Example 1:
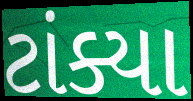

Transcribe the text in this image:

ટાંક્યા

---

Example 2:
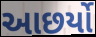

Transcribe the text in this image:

આછર્યો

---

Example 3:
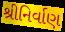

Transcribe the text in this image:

શ્રીનિર્વાણ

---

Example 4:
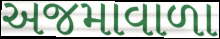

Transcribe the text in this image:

અજમાવાળા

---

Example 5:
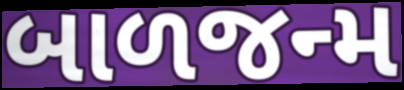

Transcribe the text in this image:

બાળજન્મ